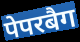
पेपरबैग